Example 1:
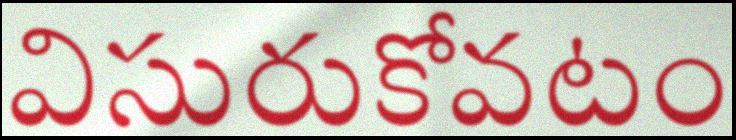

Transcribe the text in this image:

విసురుకోవటం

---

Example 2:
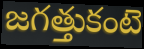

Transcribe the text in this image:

జగత్తుకంటె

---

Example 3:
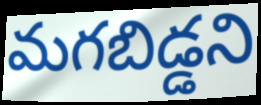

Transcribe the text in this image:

మగబిడ్డని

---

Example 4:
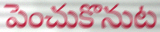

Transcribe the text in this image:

పెంచుకొనుట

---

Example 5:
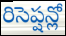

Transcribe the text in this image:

రిసెప్షన్లో